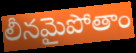
లీనమైపోతాం